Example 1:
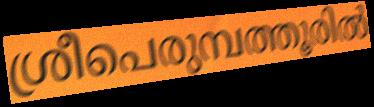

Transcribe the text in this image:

ശ്രീപെരുമ്പത്തൂരിൽ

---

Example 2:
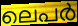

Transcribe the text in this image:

ലെപർ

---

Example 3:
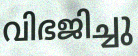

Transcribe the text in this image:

വിഭജിച്ചു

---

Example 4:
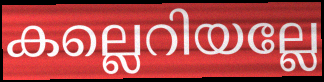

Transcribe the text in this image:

കല്ലെറിയല്ലേ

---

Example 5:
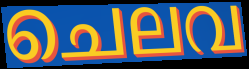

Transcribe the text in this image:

ചെലവ